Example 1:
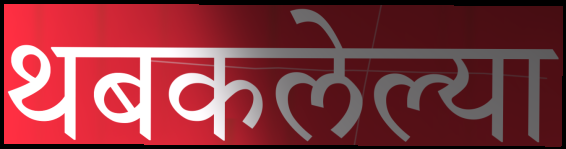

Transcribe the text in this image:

थबकलेल्या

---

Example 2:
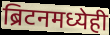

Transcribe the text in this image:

ब्रिटनमध्येही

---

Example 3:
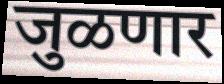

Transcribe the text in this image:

जुळणार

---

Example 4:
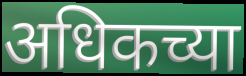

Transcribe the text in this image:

अधिकच्या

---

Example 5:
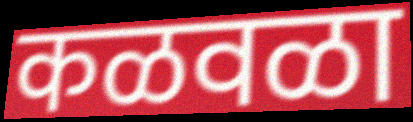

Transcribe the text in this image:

कळवळा